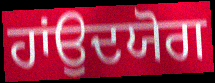
ਹਾਂਉਦਯੋਗ